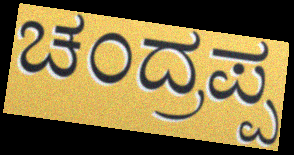
ಚಂದ್ರಪ್ಪ